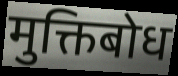
मुक्तिबोध